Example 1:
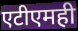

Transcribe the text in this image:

एटीएमही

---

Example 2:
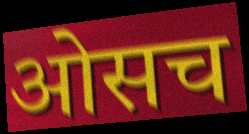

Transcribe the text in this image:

ओसच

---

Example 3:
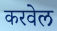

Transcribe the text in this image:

करवेल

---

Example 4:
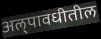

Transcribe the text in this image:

अल्पावधीतील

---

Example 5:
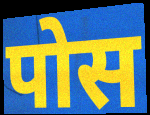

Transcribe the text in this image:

पोस